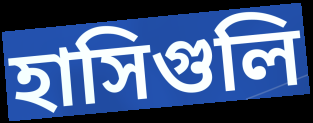
হাসিগুলি